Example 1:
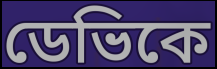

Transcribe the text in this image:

ডেভিকে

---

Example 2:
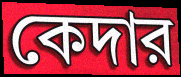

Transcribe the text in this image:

কেদার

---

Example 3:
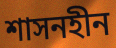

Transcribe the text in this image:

শাসনহীন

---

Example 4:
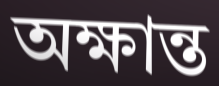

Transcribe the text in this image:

অক্ষান্ত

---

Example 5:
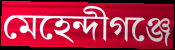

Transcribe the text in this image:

মেহেন্দীগঞ্জে